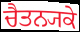
ਚੈਤਨ੍ਯਕੇ